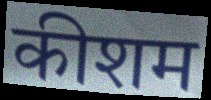
कीशम